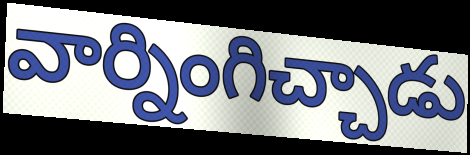
వార్నింగిచ్చాడు